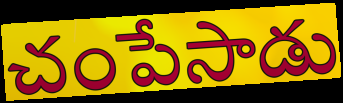
చంపేసాడు